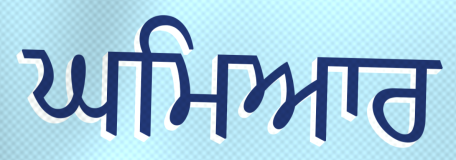
ਘਮਿਆਰ